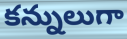
కన్నులుగా